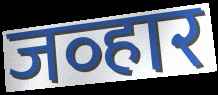
जव्हार